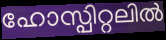
ഹോസ്പിറ്റലിൽ